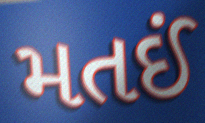
મતઈં